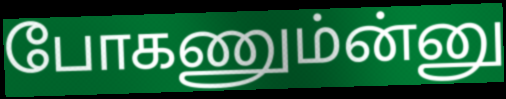
போகணும்ன்னு